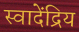
स्वादेंद्रिय